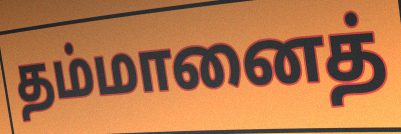
தம்மானைத்